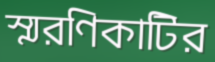
স্মরণিকাটির